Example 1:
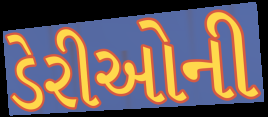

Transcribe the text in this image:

ડેરીઓની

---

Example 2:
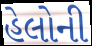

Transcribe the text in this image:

હેલોની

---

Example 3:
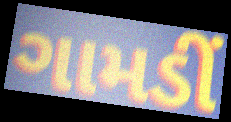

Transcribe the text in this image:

ગામડીં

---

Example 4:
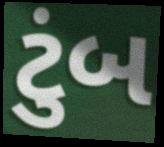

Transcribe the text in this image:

ટુંબ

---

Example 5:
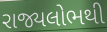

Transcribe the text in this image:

રાજ્યલોભથી